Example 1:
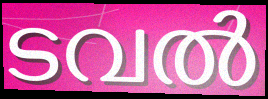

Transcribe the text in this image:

ടവൽ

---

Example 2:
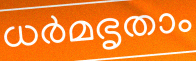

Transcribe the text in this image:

ധർമഭൃതാം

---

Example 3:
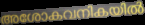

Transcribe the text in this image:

അശോകവനികയിൽ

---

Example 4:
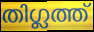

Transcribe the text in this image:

തിഗ്ലത്ത്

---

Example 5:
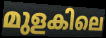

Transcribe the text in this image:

മുളകിലെ